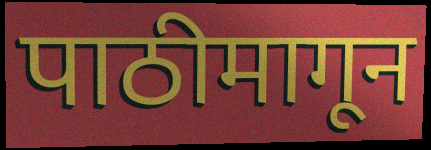
पाठीमागून